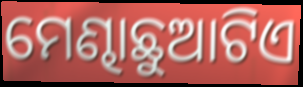
ମେଣ୍ଢାଛୁଆଟିଏ